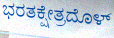
ಭರತಕ್ಷೇತ್ರದೊಳ್